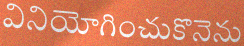
వినియోగించుకొనెను